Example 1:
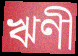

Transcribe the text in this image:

ঋণী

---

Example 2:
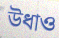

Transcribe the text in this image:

উধাও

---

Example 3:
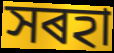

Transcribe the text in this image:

সৰহা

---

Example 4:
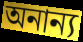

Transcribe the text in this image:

অনান্য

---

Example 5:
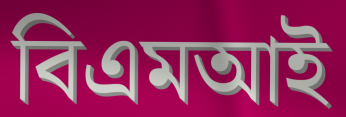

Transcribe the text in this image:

বিএমআই